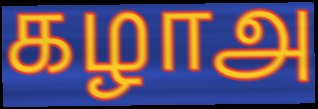
கழாஅ